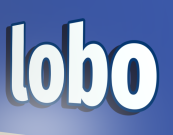
lobo